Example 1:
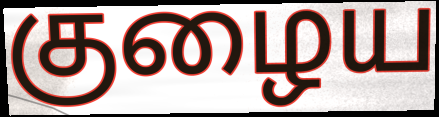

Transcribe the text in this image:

குழைய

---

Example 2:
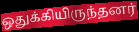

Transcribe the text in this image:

ஒதுக்கியிருந்தனர்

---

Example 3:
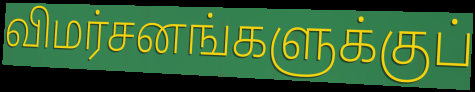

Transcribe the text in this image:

விமர்சனங்களுக்குப்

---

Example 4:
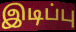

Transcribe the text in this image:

இடிப்பு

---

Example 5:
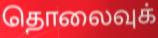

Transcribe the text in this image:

தொலைவுக்